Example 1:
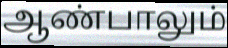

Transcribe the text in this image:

ஆண்பாலும்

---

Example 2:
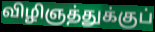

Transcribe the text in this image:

விழிஞத்துக்குப்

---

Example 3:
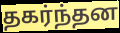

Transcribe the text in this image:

தகர்ந்தன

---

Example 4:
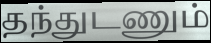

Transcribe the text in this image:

தந்துடணும்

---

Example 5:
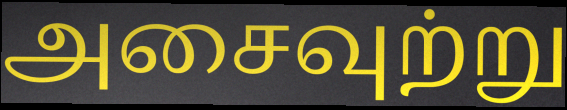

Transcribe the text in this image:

அசைவுற்று